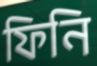
ফিনি